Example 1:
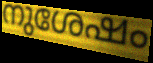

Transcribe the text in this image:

നുശേഷം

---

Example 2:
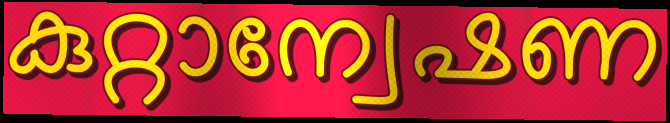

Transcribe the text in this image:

കുറ്റാന്വേഷണ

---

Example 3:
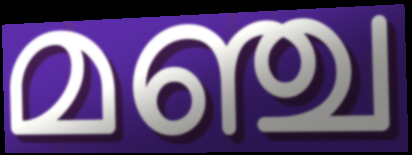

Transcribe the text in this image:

മഞ്ച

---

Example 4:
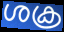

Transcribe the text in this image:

ശക്ര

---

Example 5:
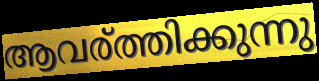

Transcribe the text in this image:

ആവര്ത്തിക്കുന്നു